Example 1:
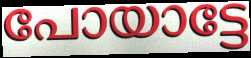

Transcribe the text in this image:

പോയാട്ടേ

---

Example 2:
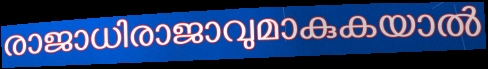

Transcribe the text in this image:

രാജാധിരാജാവുമാകുകയാൽ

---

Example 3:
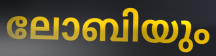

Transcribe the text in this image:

ലോബിയും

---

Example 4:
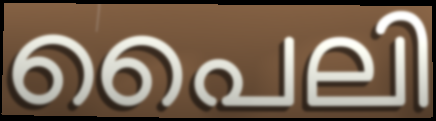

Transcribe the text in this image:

പൈലി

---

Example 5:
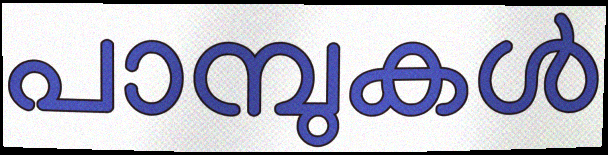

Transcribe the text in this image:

പാമ്പുകൾ